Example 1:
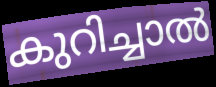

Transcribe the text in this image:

കുറിച്ചാൽ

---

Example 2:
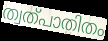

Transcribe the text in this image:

ത്വത്പാതിതം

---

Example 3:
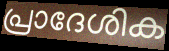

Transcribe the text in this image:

പ്രാദേശിക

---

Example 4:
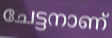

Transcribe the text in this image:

ചേട്ടനാണ്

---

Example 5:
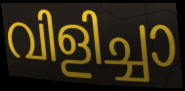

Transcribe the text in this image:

വിളിച്ചാ